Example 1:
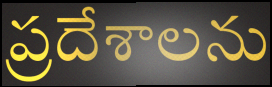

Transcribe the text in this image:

ప్రదేశాలను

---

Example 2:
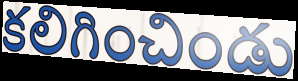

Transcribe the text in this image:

కలిగించిండు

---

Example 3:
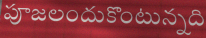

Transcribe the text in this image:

పూజలందుకొంటున్నది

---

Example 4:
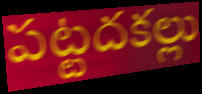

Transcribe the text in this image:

పట్టదకల్లు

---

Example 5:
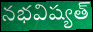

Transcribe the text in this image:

నభవిష్యత్